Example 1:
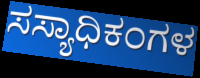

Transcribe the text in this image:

ಸಸ್ಯಾಧಿಕಂಗಳ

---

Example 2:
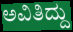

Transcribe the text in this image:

ಅವಿತಿದ್ದು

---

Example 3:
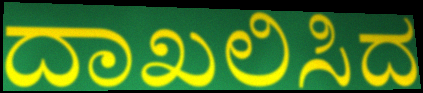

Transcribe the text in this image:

ದಾಖಲಿಸಿದ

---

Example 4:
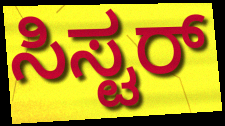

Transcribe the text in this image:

ಸಿಸ್ಟರ್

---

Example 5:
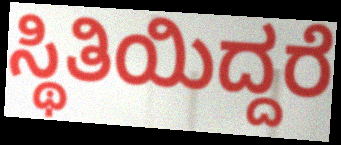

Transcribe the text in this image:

ಸ್ಥಿತಿಯಿದ್ದರೆ